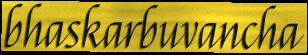
bhaskarbuvancha